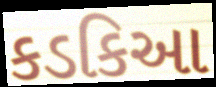
કડકિઆ